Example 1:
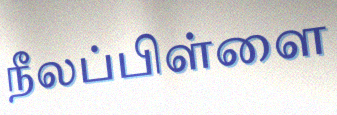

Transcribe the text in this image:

நீலப்பிள்ளை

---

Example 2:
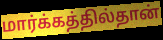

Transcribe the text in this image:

மார்க்கத்தில்தான்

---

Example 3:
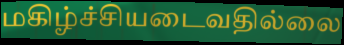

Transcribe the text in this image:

மகிழ்ச்சியடைவதில்லை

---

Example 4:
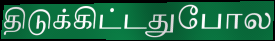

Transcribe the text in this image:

திடுக்கிட்டதுபோல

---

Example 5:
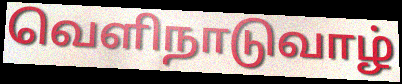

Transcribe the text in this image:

வெளிநாடுவாழ்